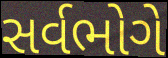
સર્વભોગે